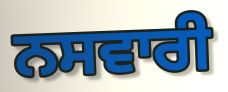
ਨਸਵਾਰੀ